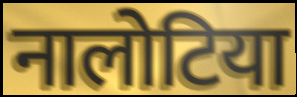
नालोटिया